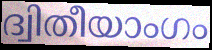
ദ്വിതീയാംഗം